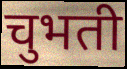
चुभती